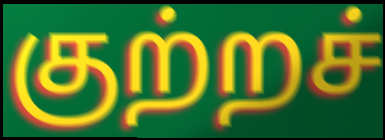
குற்றச்